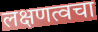
लक्षणत्वचा